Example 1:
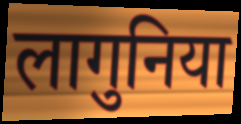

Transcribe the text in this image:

लागुनिया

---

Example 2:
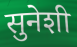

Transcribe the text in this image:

सुनेशी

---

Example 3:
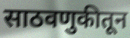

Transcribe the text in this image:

साठवणुकीतून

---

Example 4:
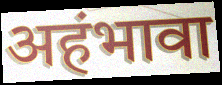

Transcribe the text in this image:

अहंभावा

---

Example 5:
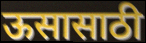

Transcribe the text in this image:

ऊसासाठी